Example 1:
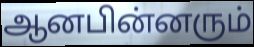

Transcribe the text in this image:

ஆனபின்னரும்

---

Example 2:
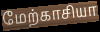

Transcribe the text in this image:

மேற்காசியா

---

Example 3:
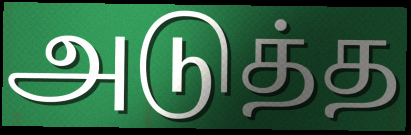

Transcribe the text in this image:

அடுத்த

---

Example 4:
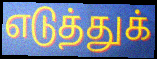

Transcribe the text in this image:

எடுத்துக்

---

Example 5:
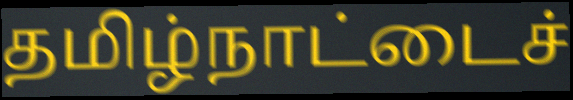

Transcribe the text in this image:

தமிழ்நாட்டைச்